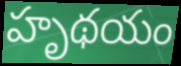
హృథయం